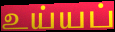
உய்யப்